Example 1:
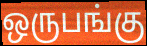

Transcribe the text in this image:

ஒருபங்கு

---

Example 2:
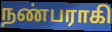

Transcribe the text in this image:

நண்பராகி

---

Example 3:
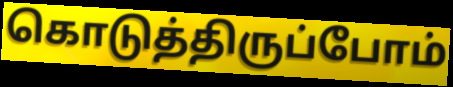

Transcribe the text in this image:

கொடுத்திருப்போம்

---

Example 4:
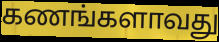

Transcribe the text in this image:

கணங்களாவது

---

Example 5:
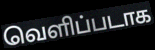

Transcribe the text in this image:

வெளிப்படாக